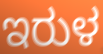
ಇರುಳ